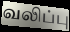
வலிப்பு